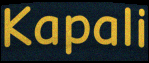
Kapali